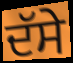
ਦੱਸੇ